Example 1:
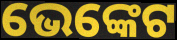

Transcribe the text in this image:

ଭେଙ୍କେଟ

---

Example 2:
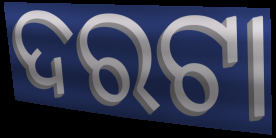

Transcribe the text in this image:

ଦରଟା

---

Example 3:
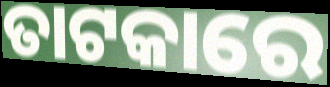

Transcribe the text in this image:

ତାଟକାରେ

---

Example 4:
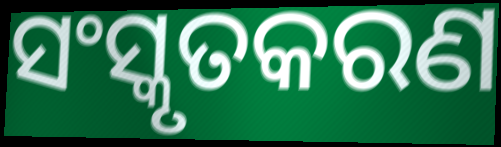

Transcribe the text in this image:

ସଂସ୍କୃତକରଣ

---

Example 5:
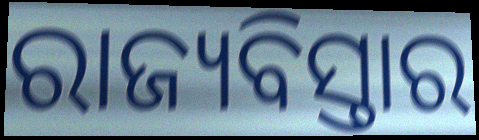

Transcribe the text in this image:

ରାଜ୍ୟବିସ୍ତାର